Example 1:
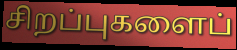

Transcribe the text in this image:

சிறப்புகளைப்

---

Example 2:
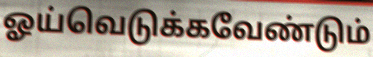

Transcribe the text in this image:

ஓய்வெடுக்கவேண்டும்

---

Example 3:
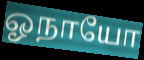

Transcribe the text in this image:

ஓநாயோ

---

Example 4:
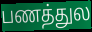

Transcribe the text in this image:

பணத்துல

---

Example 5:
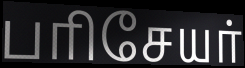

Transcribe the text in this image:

பரிசேயர்